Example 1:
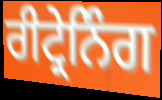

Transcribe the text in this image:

ਰੀਟ੍ਰੇਨਿੰਗ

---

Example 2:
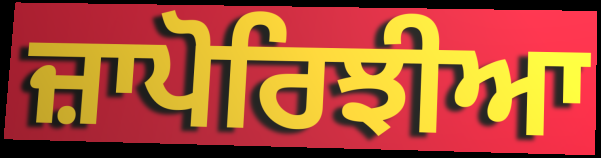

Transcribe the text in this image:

ਜ਼ਾਪੋਰਿਝੀਆ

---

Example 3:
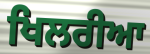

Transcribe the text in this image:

ਖਿਲਰੀਆ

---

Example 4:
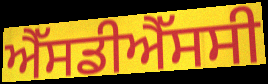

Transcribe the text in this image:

ਐੱਸਡੀਐੱਸਸੀ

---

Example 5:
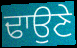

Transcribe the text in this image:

ਢਾਉਣੇ